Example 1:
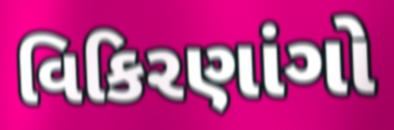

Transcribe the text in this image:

વિકિરણાંગો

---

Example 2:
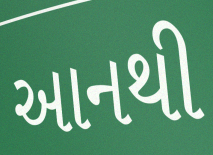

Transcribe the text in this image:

આનથી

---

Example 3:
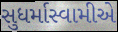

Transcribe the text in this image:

સુધર્માસ્વામીએ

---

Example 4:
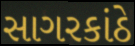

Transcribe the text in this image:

સાગરકાંઠે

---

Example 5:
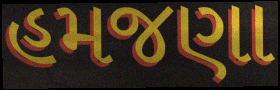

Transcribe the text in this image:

હમજણા